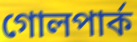
গোলপার্ক